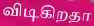
விடிகிறதா